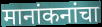
मानांकनांचा